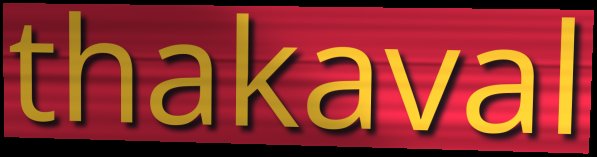
thakaval